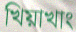
খিয়াখাং